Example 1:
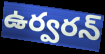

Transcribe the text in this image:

ఉర్వరన్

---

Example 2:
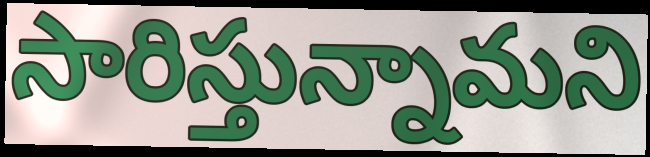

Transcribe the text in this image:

సారిస్తున్నామని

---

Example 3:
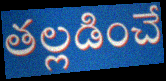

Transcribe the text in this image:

తల్లడించే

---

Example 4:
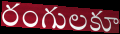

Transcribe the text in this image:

రంగులకూ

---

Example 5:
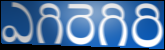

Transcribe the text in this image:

ఎగిరెగిరి